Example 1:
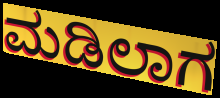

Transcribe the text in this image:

ಮಡಿಲಾಗ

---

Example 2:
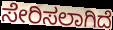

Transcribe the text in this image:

ಸೇರಿಸಲಾಗಿದೆ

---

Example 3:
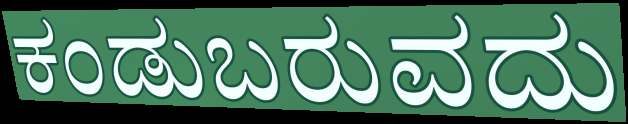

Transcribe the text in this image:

ಕಂಡುಬರುವದು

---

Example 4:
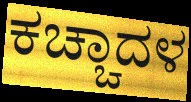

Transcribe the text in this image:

ಕಚ್ಚಾದಳ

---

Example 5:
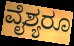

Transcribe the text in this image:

ವೈಶ್ಯರೂ